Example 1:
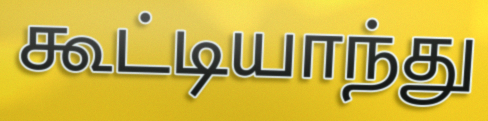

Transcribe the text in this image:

கூட்டியாந்து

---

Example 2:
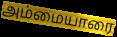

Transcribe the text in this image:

அம்மையாரை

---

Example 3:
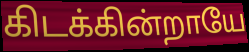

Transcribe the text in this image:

கிடக்கின்றாயே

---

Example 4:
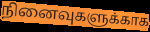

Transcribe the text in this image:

நினைவுகளுக்காக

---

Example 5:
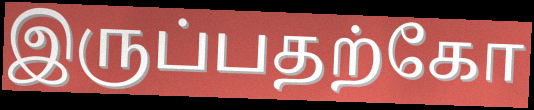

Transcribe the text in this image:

இருப்பதற்கோ